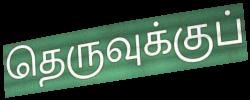
தெருவுக்குப்